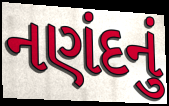
નણંદનું